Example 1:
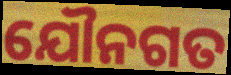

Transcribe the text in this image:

ଯୌନଗତ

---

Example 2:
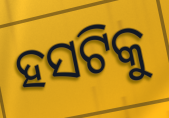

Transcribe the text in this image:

ହସଟିକୁ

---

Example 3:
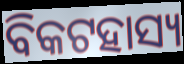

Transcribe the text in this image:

ବିକଟହାସ୍ୟ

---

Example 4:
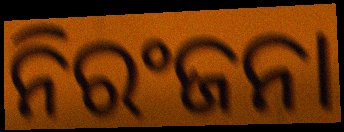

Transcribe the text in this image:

ନିରଂଜନା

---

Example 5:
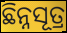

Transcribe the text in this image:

ଛିନ୍ନସୂତ୍ର